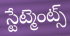
స్టేట్మెంట్స్